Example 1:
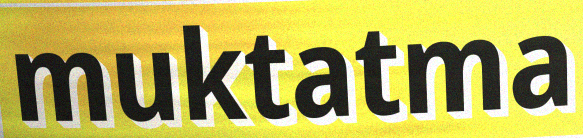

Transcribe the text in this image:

muktatma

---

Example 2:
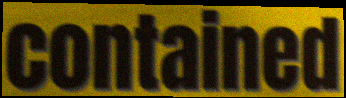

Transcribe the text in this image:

contained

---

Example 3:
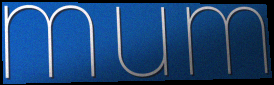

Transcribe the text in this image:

mum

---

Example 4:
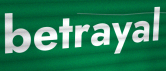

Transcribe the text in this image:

betrayal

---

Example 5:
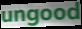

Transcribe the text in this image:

ungood